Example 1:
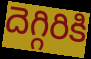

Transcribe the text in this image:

దెగ్గిరికి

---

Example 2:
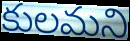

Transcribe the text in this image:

కులమని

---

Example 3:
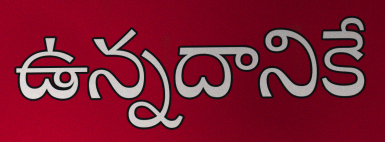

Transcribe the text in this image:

ఉన్నదానికే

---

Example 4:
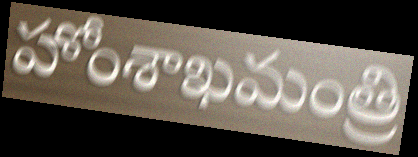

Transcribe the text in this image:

హోంశాఖమంత్రి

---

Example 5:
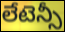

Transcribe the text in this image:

లేటెన్సీ